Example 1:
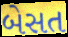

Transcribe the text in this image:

બેસત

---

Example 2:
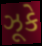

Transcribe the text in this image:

ઝૂકે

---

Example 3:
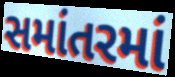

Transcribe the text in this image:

સમાંતરમાં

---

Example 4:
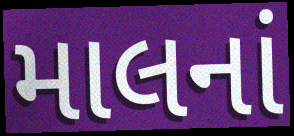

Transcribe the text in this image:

માલનાં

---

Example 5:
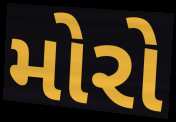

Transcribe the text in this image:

મોરો